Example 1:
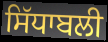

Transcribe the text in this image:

ਸਿੱਧਾਬਲੀ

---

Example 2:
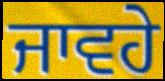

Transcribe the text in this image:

ਜਾਵਹੇ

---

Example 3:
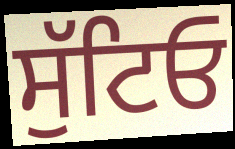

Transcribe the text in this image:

ਸੁੱਟਿਓ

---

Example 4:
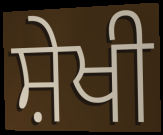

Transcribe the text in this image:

ਸ਼ੇਖੀ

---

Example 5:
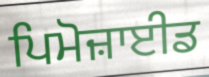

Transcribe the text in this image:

ਪਿਮੋਜ਼ਾਈਡ